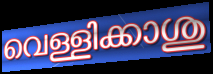
വെള്ളിക്കാശു